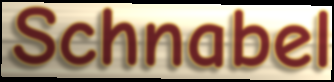
Schnabel